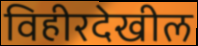
विहीरदेखील